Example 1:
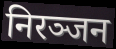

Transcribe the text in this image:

निरञ्जन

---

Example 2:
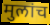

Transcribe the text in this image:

मुलांच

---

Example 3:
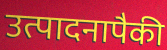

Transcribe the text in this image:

उत्पादनापैकी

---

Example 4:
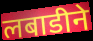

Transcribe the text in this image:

लबाडीने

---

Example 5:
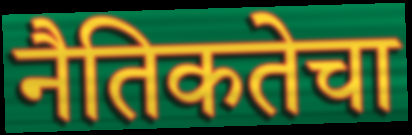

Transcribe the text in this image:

नैतिकतेचा